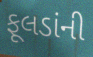
ફૂલડાંની